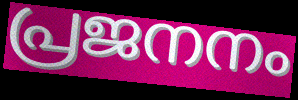
പ്രജനനം